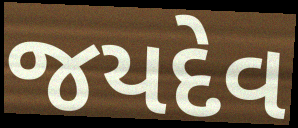
જયદેવ